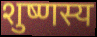
शुष्णस्य